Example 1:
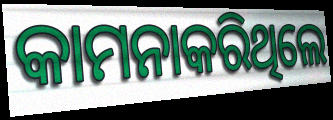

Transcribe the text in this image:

କାମନାକରିଥିଲେ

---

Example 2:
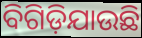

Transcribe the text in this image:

ବିଗିଡ଼ିଯାଉଛି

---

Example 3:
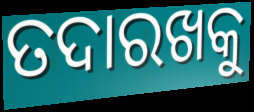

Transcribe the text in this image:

ତଦାରଖକୁ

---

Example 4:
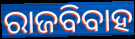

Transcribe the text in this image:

ରାଜବିବାହ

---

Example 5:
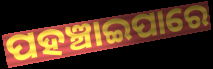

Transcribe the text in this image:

ପହଞ୍ଚାଇପାରେ